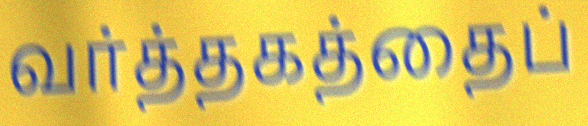
வர்த்தகத்தைப்